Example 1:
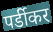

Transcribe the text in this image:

पर्डीकर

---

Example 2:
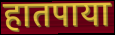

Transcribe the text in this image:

हातपाया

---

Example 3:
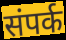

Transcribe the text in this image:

संपर्क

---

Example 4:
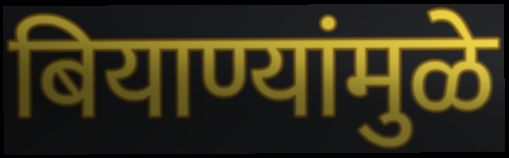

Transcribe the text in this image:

बियाण्यांमुळे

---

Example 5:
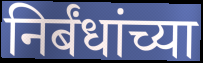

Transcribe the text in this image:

निर्बंधांच्या